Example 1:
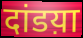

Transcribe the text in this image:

दांडय़ा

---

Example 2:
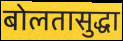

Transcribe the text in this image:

बोलतासुद्धा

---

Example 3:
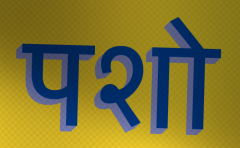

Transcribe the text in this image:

पशो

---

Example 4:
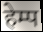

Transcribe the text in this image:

हेम्प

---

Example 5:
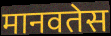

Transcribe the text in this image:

मानवतेस